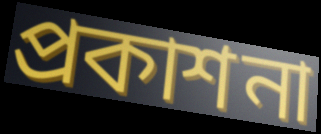
প্রকাশনা